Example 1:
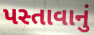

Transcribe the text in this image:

પસ્તાવાનું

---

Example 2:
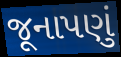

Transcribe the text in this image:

જૂનાપણું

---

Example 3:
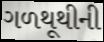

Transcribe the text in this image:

ગળથૂથીની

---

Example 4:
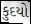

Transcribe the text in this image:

કુદયો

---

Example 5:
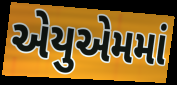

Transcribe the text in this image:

એયુએમમાં